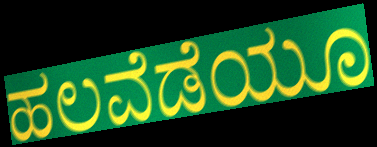
ಹಲವೆಡೆಯೂ